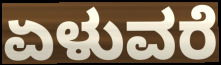
ಏಳುವರೆ